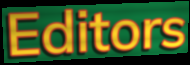
Editors